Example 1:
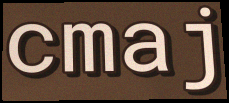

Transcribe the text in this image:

cmaj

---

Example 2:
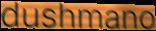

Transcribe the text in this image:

dushmano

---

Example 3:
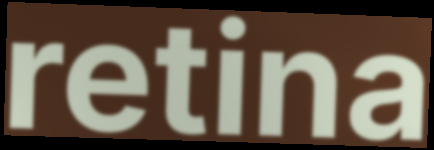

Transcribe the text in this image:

retina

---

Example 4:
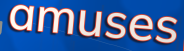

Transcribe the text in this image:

amuses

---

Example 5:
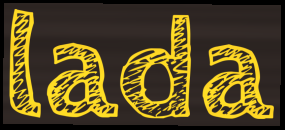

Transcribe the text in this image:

lada